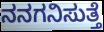
ನನಗನಿಸುತ್ತೆ